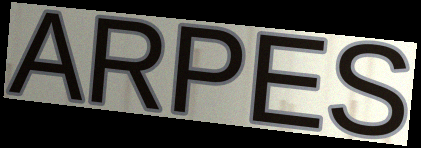
ARPES